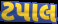
ટપાલ